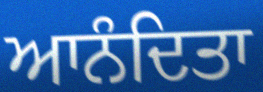
ਆਨੰਦਿਤਾ